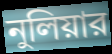
নুলিয়ার